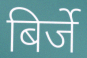
बिर्जे